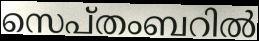
സെപ്തംബറിൽ